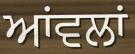
ਆਂਵਲਾਂ